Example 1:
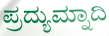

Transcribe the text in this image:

ಪ್ರದ್ಯುಮ್ನಾದಿ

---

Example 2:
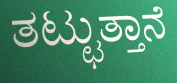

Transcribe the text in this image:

ತಟ್ಟುತ್ತಾನೆ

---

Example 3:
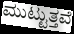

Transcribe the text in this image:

ಮುಟ್ಟುತ್ತವೆ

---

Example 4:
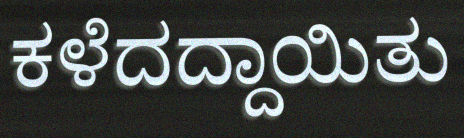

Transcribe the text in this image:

ಕಳೆದದ್ದಾಯಿತು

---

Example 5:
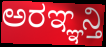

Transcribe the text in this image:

ಅರಞ್ಞನ್ತಿ